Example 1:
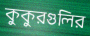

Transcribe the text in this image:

কুকুরগুলির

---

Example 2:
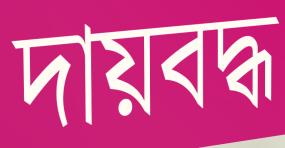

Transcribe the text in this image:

দায়বদ্ধ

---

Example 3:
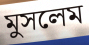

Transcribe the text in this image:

মুসলেম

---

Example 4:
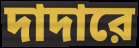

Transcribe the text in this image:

দাদারে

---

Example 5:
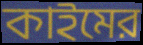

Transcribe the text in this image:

কাইমের